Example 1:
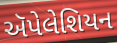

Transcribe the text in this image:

ઍપેલેશિયન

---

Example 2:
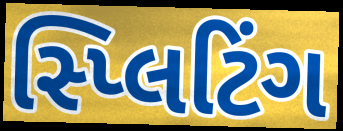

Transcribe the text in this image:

સ્પ્લિટિંગ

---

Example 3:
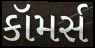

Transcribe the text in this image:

કૉમર્સ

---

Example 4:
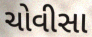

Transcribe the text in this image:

ચોવીસા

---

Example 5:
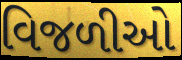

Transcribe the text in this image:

વિજળીઓ